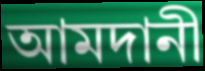
আমদানী